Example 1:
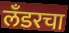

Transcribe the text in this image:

लँडरचा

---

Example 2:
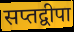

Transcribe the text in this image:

सप्तद्वीपा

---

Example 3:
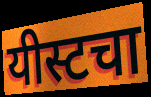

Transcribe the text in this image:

यीस्टचा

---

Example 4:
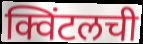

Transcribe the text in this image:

क्विंटलची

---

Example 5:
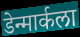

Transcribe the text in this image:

डेन्मार्कला